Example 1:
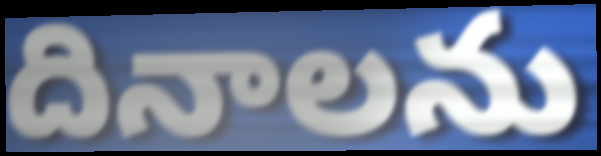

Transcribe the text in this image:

దినాలను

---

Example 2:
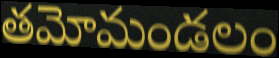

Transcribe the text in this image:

తమోమండలం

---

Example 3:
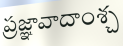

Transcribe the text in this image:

ప్రజ్ఞావాదాంశ్చ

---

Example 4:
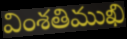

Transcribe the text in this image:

వింశతిముఖి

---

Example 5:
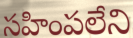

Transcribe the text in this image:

సహింపలేని